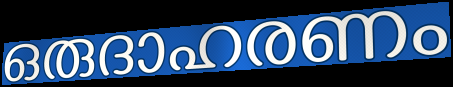
ഒരുദാഹരണം